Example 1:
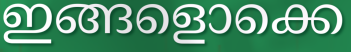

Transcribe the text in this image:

ഇങ്ങളൊക്കെ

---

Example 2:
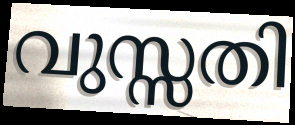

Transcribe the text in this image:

വുസ്സതി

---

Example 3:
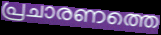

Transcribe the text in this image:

പ്രചാരണത്തെ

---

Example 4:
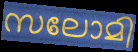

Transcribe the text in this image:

സലോമി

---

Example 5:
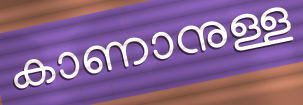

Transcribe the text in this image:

കാണാനുള്ള